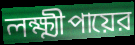
লক্ষ্মীপায়ের